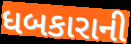
ધબકારાની